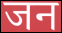
जन